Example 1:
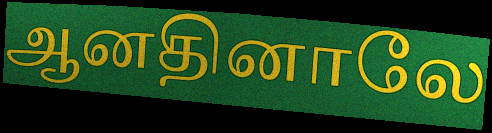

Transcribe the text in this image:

ஆனதினாலே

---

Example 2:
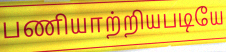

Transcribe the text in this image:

பணியாற்றியபடியே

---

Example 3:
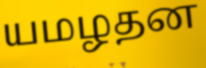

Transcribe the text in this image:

யமழதன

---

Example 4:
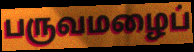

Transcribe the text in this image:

பருவமழைப்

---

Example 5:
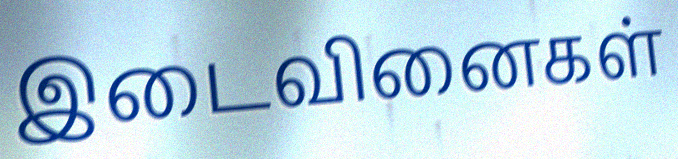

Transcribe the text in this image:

இடைவினைகள்